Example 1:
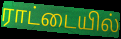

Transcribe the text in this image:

ராட்டையில்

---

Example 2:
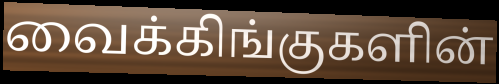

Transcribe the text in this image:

வைக்கிங்குகளின்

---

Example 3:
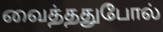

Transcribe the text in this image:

வைத்ததுபோல்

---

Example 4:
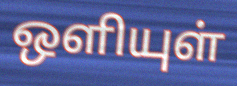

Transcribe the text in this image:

ஒளியுள்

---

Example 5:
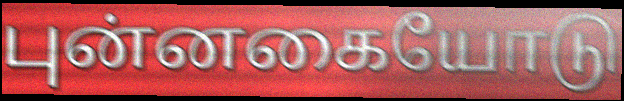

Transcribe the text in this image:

புன்னகையோடு